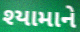
શ્યામાને